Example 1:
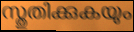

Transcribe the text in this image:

സ്തുതിക്കുകയും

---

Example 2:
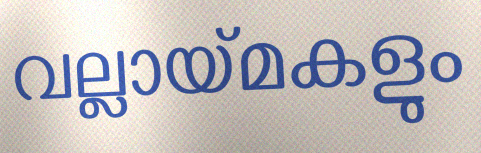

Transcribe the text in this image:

വല്ലായ്മകളും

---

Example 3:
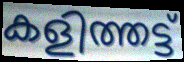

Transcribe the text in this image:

കളിത്തട്ട്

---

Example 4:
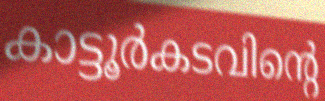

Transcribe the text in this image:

കാട്ടൂർകടവിന്റെ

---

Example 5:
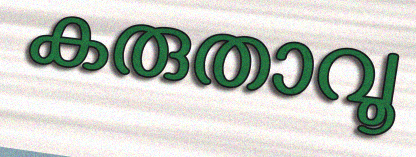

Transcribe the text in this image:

കരുതാവൂ